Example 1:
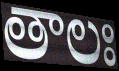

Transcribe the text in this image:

తాలః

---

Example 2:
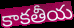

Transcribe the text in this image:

కాకతీయ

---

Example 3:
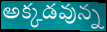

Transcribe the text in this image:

అక్కడవున్న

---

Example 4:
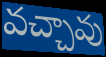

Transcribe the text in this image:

వచ్చావు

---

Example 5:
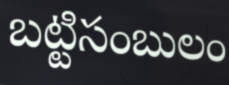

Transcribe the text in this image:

బట్టిసంబులం